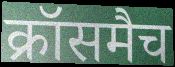
क्रॉसमैच